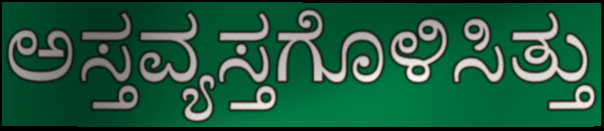
ಅಸ್ತವ್ಯಸ್ತಗೊಳಿಸಿತ್ತು